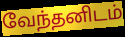
வேந்தனிடம்